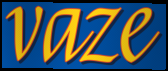
vaze